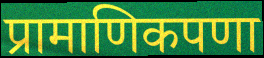
प्रामाणिकपणा